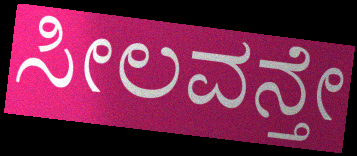
ಸೀಲವನ್ತೇ